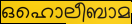
ഒഹൊലീബാമ